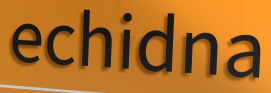
echidna